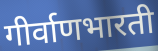
गीर्वाणभारती